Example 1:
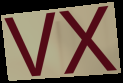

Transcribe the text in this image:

VX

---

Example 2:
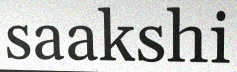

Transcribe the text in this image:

saakshi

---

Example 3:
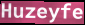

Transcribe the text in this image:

Huzeyfe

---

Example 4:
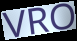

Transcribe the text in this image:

VRO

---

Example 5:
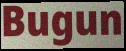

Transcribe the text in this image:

Bugun